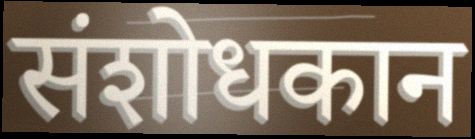
संशोधकान